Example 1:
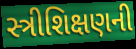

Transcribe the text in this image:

સ્ત્રીશિક્ષણની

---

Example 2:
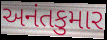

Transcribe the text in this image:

અનંતકુમાર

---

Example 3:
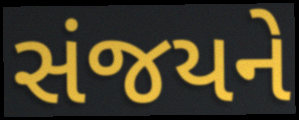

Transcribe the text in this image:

સંજયને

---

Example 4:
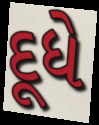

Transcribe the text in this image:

દૂધે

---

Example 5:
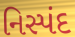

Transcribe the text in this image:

નિસ્પંદ